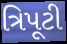
ત્રિપૂટી